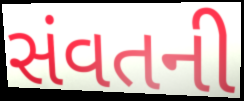
સંવતની